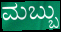
ಮಬ್ಬು